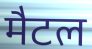
मैटल